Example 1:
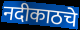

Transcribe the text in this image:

नदीकाठचे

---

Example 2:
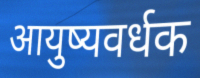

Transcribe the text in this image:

आयुष्यवर्धक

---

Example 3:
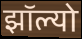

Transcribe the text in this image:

झॉल्यो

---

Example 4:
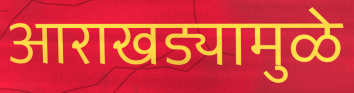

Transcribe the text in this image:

आराखड्यामुळे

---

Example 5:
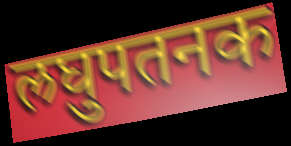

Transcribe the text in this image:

लघुपतनक